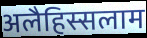
अलैहिस्सलाम